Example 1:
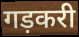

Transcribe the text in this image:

गड़करी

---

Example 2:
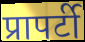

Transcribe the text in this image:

प्रापर्टी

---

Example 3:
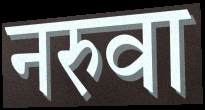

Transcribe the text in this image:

नरुवा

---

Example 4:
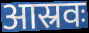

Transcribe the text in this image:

आस्रवः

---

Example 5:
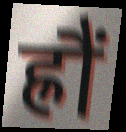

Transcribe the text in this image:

ह्रौं